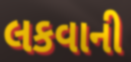
લકવાની